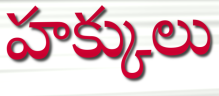
హక్కులు